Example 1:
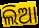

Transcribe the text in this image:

ଲିଆ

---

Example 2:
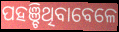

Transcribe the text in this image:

ପହଞ୍ଚିଥିବାବେଳେ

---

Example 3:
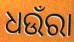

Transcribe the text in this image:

ଧଉଁରା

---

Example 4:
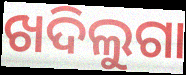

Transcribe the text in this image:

ଖଦିଲୁଗା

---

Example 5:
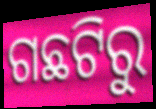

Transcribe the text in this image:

ଗଛଟିରୁ